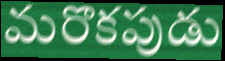
మరొకపుడు